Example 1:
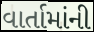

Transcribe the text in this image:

વાર્તામાંની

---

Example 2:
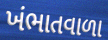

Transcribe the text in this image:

ખંભાતવાળા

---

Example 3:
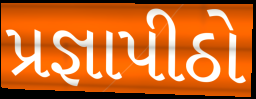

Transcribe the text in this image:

પ્રજ્ઞાપીઠો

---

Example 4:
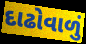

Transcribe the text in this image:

દાઢોવાળું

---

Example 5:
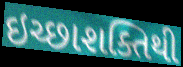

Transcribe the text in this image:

ઇચ્છાશક્તિથી